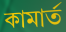
কামার্ত